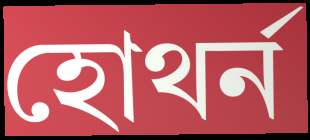
হোথর্ন